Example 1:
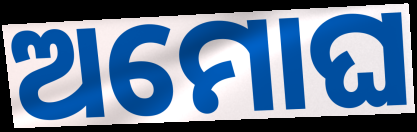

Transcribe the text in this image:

ଅମୋଘ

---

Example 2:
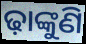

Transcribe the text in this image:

ଢ଼ାଙ୍କୁଣି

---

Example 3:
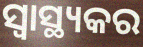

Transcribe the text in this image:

ସ୍ୱାସ୍ଥ୍ୟକର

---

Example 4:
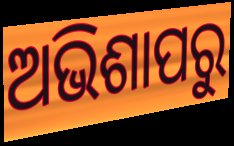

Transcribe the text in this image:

ଅଭିଶାପରୁ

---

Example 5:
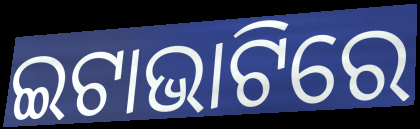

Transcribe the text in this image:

ଇଟାଭାଟିରେ